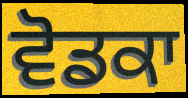
ਵੋਡਕਾ